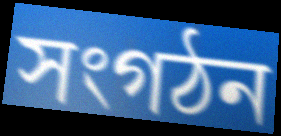
সংগঠন